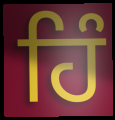
ਹਿੰ